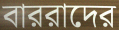
বাররাদের